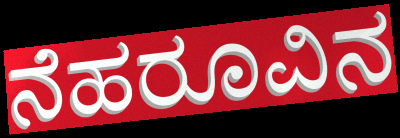
ನೆಹರೂವಿನ